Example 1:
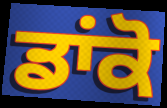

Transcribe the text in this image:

ਡਾਂਕੋ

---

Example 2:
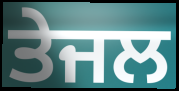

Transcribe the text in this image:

ਤੇਜਲ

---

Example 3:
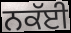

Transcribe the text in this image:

ਨਕੱਈ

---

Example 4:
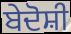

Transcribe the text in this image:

ਬੇਦੋਸ਼ੀ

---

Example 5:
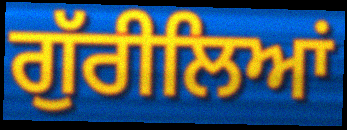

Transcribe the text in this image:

ਗੁੱਰੀਲਿਆਂ